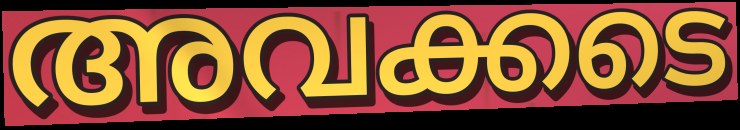
അവക്കടെ